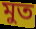
মুত